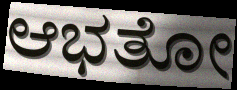
ಆಭತೋ